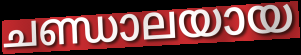
ചണ്ഡാലയായ